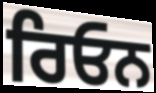
ਰਿਓਨ